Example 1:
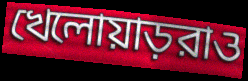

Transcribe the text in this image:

খেলোয়াড়রাও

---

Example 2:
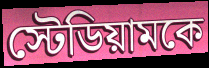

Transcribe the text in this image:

স্টেডিয়ামকে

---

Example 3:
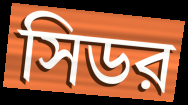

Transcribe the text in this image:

সিডর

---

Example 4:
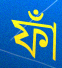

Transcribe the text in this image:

ফাঁ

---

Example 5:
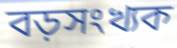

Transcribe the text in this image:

বড়সংখ্যক